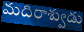
మదిరాశ్వుడు